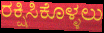
ರಕ್ಷಿಸಿಕೊಳ್ಳಲು